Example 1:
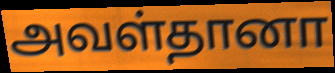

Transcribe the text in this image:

அவள்தானா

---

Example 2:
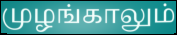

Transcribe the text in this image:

முழங்காலும்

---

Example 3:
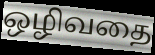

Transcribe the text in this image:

ஒழிவதை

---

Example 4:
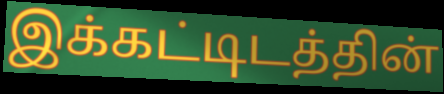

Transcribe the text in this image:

இக்கட்டிடத்தின்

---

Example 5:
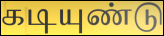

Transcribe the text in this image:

கடியுண்டு